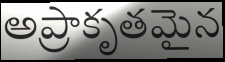
అప్రాకృతమైన